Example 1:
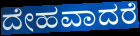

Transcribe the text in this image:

ದೇಹವಾದರೆ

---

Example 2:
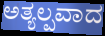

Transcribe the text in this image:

ಅತ್ಯಲ್ಪವಾದ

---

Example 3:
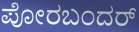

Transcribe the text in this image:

ಪೋರಬಂದರ್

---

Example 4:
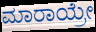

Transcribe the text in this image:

ಮಾರಾಯ್ರೇ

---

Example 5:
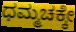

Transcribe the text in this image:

ಧಮ್ಮಚಕ್ಕೇ